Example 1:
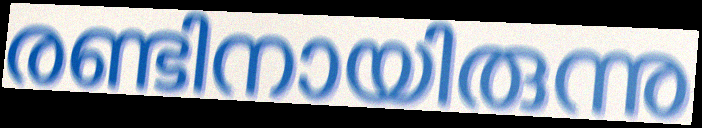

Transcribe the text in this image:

രണ്ടിനായിരുന്നു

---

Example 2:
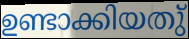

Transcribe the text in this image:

ഉണ്ടാക്കിയതു്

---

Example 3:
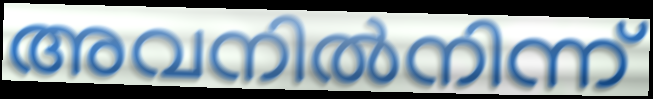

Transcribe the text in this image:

അവനിൽനിന്ന്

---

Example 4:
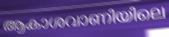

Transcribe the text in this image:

ആകാശവാണിയിലെ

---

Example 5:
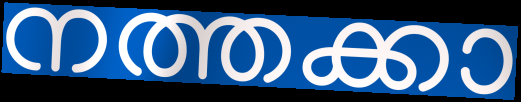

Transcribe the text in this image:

നത്തക്കാ